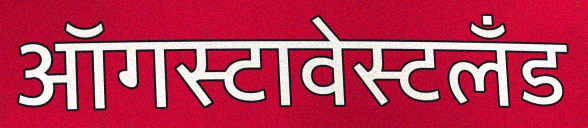
ऑगस्टावेस्टलँड